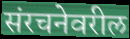
संरचनेवरील